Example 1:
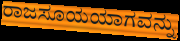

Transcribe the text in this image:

ರಾಜಸೂಯಯಾಗವನ್ನು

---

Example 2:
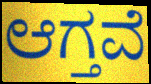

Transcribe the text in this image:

ಆಗ್ತವೆ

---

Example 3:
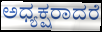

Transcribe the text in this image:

ಅಧ್ಯಕ್ಷರಾದರೆ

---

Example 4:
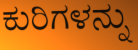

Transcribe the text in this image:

ಕುರಿಗಳನ್ನು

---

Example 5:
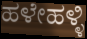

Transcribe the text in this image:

ಹಳೇಹಳ್ಳಿ